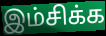
இம்சிக்க